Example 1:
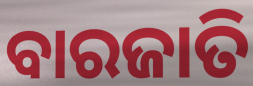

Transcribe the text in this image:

ବାରଜାତି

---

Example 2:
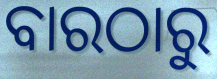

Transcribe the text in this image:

ବାରଠାରୁ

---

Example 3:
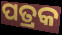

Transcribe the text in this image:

ପତ୍ରକ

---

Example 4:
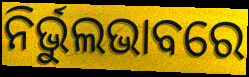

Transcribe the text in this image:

ନିର୍ଭୁଲଭାବରେ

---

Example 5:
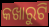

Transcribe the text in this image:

କଖାରୁଟି